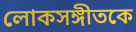
লোকসঙ্গীতকে